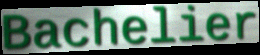
Bachelier